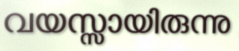
വയസ്സായിരുന്നു